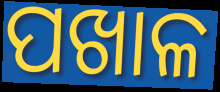
ପଖାଳ